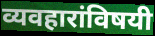
व्यवहारांविषयी